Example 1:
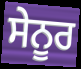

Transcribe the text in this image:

ਸੇਨੂਰ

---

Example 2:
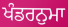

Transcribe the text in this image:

ਖੰਡਰਨੁਮਾ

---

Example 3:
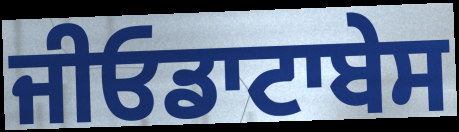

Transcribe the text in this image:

ਜੀਓਡਾਟਾਬੇਸ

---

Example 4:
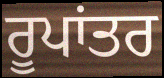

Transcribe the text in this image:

ਰੂਪਾਂਤਰ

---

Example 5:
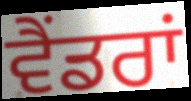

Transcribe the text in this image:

ਵੈਂਡਰਾਂ